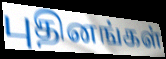
புதினங்கள்